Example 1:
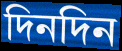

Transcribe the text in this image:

দিনদিন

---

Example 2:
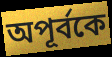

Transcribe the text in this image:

অপূর্বকে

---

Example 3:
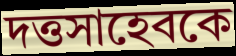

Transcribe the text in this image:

দত্তসাহেবকে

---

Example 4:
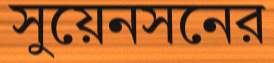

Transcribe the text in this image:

সুয়েনসনের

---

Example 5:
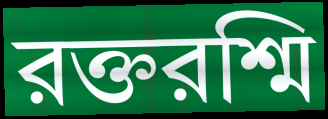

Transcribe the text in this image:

রক্তরশ্মি